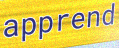
apprend